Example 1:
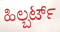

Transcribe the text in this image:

ಹಿಲ್ಬರ್ಟ್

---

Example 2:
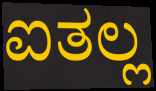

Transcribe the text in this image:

ಐತಲ್ಲ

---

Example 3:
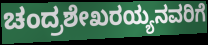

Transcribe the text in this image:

ಚಂದ್ರಶೇಖರಯ್ಯನವರಿಗೆ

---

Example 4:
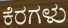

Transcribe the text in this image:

ಕೆರಗಳು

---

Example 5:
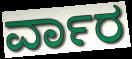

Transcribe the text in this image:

ರ್ವಾರ